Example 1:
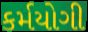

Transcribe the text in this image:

કર્મયોગી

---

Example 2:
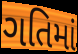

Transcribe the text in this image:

ગતિમાં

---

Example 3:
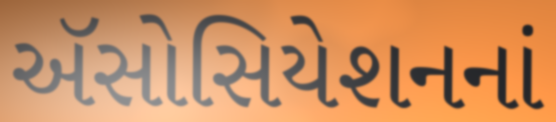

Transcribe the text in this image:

ઍસોસિયેશનનાં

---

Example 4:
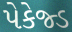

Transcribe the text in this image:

પેકેજ્ડ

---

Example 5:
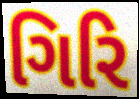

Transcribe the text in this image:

ગિરિ